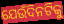
ଯେଉଁଦିନଟିକୁ